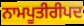
ਨਾਮਪੂਤੀਰੀਪਦ